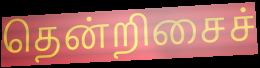
தென்றிசைச்